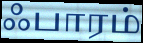
ஃபாரம்